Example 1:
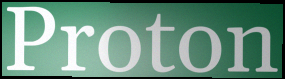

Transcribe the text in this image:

Proton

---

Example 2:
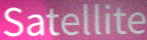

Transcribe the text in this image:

Satellite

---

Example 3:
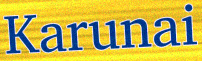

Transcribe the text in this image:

Karunai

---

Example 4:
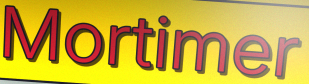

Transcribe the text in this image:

Mortimer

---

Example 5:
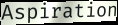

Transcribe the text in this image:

Aspiration